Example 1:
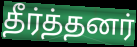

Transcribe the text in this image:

தீர்த்தனர்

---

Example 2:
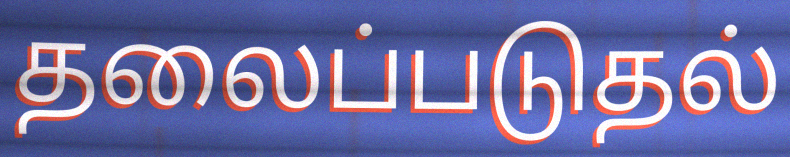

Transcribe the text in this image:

தலைப்படுதல்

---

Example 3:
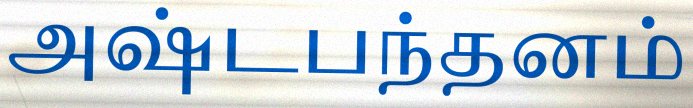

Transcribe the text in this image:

அஷ்டபந்தனம்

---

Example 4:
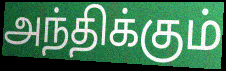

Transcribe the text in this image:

அந்திக்கும்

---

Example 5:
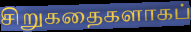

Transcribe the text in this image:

சிறுகதைகளாகப்